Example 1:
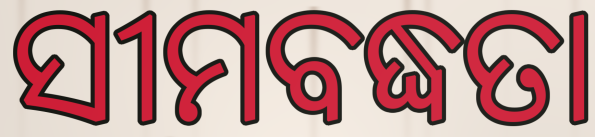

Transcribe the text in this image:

ସୀମବଦ୍ଧତା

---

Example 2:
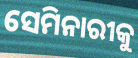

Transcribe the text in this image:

ସେମିନାରୀକୁ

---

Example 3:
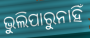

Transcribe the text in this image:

ଭୁଲିପାରୁନାହିଁ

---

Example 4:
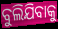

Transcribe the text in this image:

ବୁଲିଯିବାକୁ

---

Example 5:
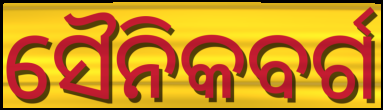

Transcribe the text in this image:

ସୈନିକବର୍ଗ